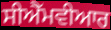
ਸੀਐੱਮਵੀਆਰ